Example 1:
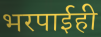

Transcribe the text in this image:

भरपाईही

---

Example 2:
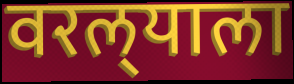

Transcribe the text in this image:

वरल्याला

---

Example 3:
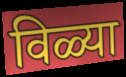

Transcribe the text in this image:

विळ्या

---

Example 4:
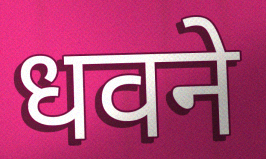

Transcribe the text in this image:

धवने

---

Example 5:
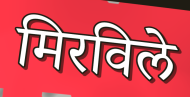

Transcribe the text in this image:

मिरविले